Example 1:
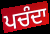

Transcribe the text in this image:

ਪਚੰਦਾ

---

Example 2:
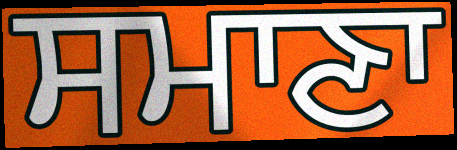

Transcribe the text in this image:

ਸਮਾਣਾ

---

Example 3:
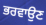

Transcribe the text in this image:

ਭਰਵਾਉਣ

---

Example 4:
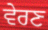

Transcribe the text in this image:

ਵੇਰਣ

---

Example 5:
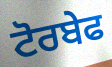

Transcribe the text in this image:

ਟੋਰਬੇਫ